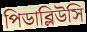
পিডাব্লিউসি